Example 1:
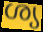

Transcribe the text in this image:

ശ്യ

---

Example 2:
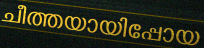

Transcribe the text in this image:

ചീത്തയായിപ്പോയ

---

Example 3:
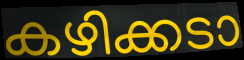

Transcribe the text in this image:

കഴിക്കടാ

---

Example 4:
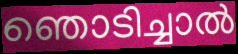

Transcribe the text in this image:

ഞൊടിച്ചാൽ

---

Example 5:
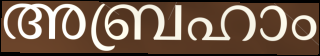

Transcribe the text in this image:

അബ്രഹാം